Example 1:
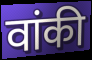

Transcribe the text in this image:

वांकी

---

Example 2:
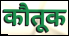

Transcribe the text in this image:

कौतूक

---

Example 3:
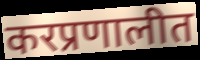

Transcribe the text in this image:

करप्रणालीत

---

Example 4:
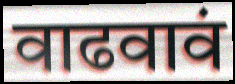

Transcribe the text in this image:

वाढवावं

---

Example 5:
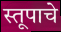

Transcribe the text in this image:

स्तूपाचे